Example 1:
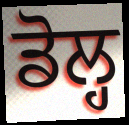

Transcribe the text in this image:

ਡੋਲ੍ਹ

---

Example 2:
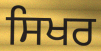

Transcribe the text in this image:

ਸਿਖਰ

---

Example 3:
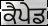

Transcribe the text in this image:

ਕੈਪੇਡ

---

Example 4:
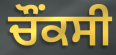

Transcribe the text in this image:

ਚੌਂਕਸੀ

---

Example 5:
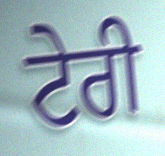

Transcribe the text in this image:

ਟੇਰੀ